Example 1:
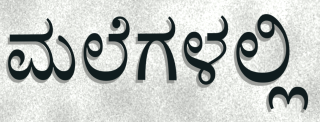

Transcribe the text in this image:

ಮಲೆಗಳಲ್ಲಿ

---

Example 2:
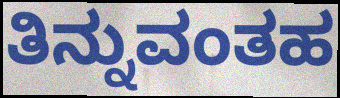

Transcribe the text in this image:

ತಿನ್ನುವಂತಹ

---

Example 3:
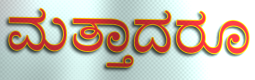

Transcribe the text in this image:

ಮತ್ತಾದರೂ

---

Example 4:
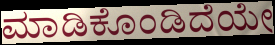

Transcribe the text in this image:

ಮಾಡಿಕೊಂಡಿದೆಯೇ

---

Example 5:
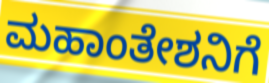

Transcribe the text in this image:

ಮಹಾಂತೇಶನಿಗೆ